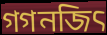
গগনজিৎ